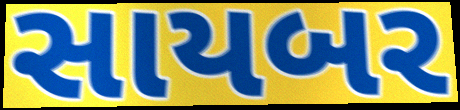
સાયબર